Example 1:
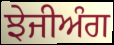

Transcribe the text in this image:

ਝੇਜੀਅੰਗ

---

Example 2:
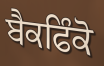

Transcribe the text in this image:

ਬੈਕਫਿੰਕੋ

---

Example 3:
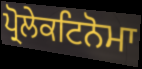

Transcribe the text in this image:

ਪ੍ਰੋਲੇਕਟਿਨੋਮਾ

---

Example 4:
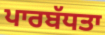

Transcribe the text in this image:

ਪਾਰਬੱਧਤਾ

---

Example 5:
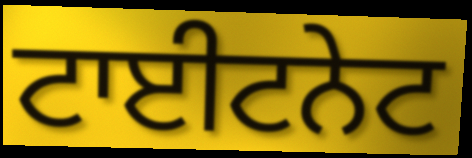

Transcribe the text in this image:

ਟਾਈਟਨੇਟ